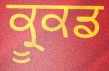
ਕ੍ਰੂਕਡ